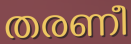
തരണീ